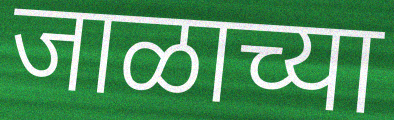
जाळाच्या